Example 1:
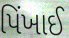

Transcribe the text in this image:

પિંખાઈ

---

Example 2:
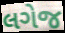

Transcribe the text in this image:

લગેજ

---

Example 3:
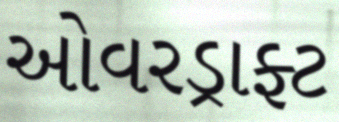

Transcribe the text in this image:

ઓવરડ્રાફ્ટ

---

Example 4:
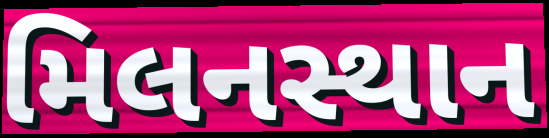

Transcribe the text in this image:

મિલનસ્થાન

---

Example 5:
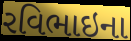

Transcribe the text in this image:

રવિભાઇના